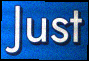
Just